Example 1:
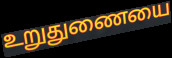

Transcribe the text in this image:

உறுதுணையை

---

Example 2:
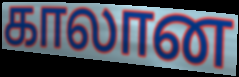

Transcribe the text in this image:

காலான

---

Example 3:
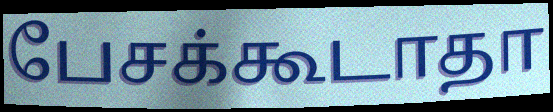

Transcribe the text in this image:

பேசக்கூடாதா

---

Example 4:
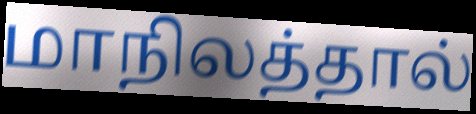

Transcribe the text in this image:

மாநிலத்தால்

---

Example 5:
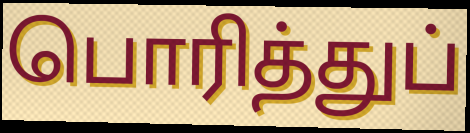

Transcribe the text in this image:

பொரித்துப்